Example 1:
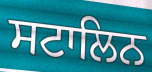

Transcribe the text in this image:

ਸਟਾਲਿਨ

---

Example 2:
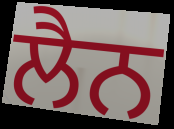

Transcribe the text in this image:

ਲੈਨ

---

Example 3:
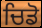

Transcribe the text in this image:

ਚਿਡੋ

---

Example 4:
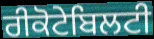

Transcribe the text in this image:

ਰੀਕੋਟੇਬਿਲਟੀ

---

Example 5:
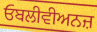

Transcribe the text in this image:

ਓਬਲੀਵੀਅਨਜ਼